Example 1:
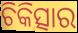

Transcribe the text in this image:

ଚିକିତ୍ସାର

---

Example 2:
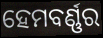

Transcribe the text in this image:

ହେମବର୍ଣ୍ଣର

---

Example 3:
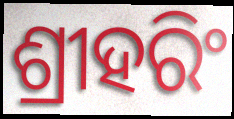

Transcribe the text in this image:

ଶ୍ରୀହରିଂ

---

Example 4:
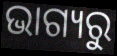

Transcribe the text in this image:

ଭାଗ୍ୟରୁ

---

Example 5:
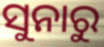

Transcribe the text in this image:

ସୁନାରୁ